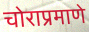
चोराप्रमाणे